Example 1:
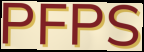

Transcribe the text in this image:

PFPS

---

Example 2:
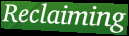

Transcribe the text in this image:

Reclaiming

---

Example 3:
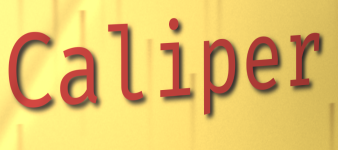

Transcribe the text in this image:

Caliper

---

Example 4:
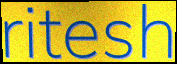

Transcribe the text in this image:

ritesh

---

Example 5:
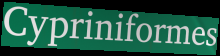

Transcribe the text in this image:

Cypriniformes